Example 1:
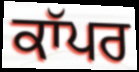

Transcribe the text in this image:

ਕਾੱਪਰ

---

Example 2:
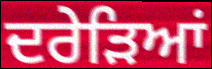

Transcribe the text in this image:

ਦਰੇੜਿਆਂ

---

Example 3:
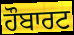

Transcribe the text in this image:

ਹੌਬਾਰਟ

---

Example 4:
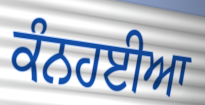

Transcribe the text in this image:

ਕੰਨਹਈਆ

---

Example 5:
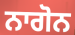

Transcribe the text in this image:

ਨਾਗੋਨ